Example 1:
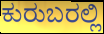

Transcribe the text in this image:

ಕುರುಬರಲ್ಲಿ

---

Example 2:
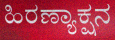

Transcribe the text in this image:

ಹಿರಣ್ಯಾಕ್ಷನ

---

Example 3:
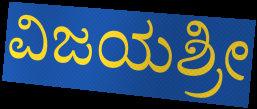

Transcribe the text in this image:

ವಿಜಯಶ್ರೀ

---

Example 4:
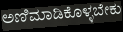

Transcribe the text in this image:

ಅಣಿಮಾಡಿಕೊಳ್ಳಬೇಕು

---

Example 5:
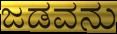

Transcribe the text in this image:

ಜಡವನು